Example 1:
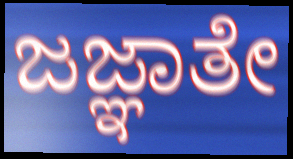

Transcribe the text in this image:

ಜಜ್ಞಾತೇ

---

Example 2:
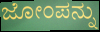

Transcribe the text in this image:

ಜೋಂಪನ್ನು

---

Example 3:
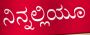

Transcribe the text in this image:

ನಿನ್ನಲ್ಲಿಯೂ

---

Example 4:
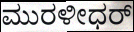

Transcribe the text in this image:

ಮುರಳೀಧರ್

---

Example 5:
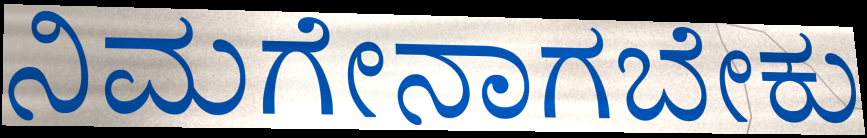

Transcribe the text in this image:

ನಿಮಗೇನಾಗಬೇಕು